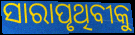
ସାରାପୃଥିବୀକୁ